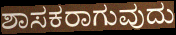
ಶಾಸಕರಾಗುವುದು